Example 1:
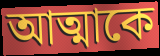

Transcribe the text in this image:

আত্মাকে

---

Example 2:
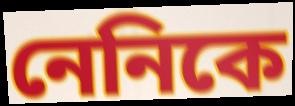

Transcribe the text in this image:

নেনিকে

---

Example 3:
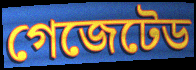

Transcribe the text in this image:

গেজেটেড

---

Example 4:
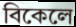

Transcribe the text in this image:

বিকেলে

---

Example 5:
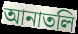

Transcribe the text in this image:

আনাতলি